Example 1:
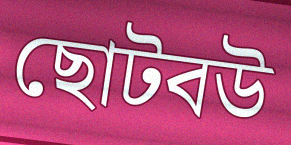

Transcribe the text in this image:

ছোটবউ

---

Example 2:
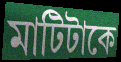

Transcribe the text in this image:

মাটিটাকে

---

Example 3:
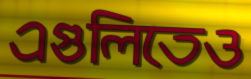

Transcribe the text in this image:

এগুলিতেও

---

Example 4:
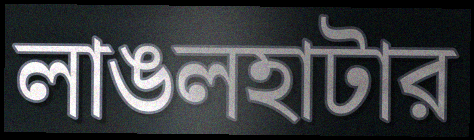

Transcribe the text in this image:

লাঙলহাটার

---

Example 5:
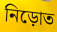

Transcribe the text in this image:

নিড়োত